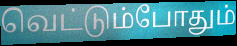
வெட்டும்போதும்